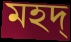
মহদ্